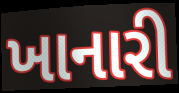
ખાનારી